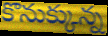
కొనుక్కున్న